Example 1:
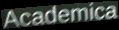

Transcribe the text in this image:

Academica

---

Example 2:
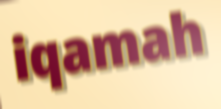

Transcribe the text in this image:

iqamah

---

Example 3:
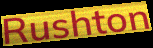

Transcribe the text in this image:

Rushton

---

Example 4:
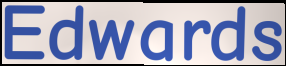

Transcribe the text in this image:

Edwards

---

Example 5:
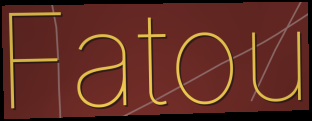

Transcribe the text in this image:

Fatou